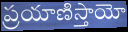
ప్రయాణిస్తాయో